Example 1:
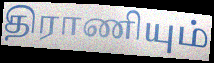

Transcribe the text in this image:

திராணியும்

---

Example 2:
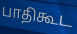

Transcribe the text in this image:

பாதிகூட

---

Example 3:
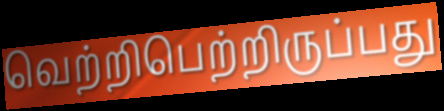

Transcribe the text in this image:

வெற்றிபெற்றிருப்பது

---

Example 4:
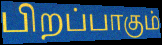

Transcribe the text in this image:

பிறப்பாகும்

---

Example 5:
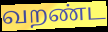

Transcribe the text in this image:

வறண்ட